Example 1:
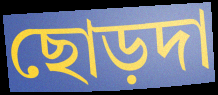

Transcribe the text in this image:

ছোড়দা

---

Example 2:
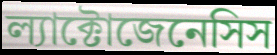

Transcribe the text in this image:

ল্যাক্টোজেনেসিস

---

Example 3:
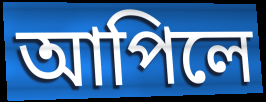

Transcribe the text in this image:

আপিলে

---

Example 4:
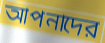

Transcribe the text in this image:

আপনাদের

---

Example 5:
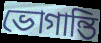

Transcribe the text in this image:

ভোগান্তি